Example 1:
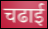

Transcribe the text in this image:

चढाई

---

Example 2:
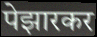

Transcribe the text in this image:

पेझारकर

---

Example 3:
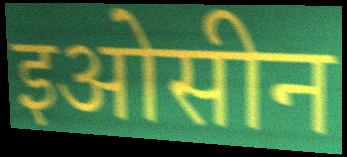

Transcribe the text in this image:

इओसीन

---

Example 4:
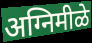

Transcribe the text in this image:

अग्निमीळे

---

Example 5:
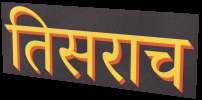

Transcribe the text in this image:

तिसराच